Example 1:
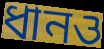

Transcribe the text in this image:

ধানও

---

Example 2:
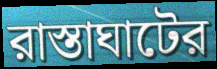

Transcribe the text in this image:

রাস্তাঘাটের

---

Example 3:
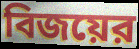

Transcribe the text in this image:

বিজয়ের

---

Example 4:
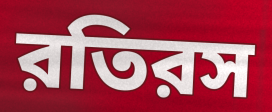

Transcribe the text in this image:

রতিরস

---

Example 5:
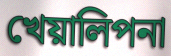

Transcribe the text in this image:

খেয়ালিপনা